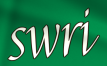
swri